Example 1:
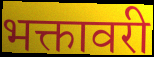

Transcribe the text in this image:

भक्तावरी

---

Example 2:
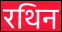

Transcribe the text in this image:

रथिन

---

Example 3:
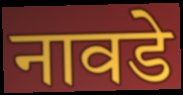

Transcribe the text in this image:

नावडे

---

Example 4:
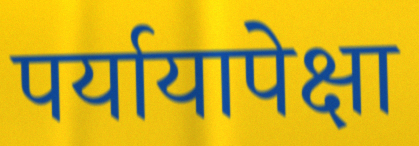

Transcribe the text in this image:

पर्यायापेक्षा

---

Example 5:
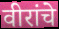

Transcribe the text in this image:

वीरांचे